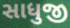
સાધુજી